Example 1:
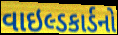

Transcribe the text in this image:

વાઇલ્ડકાર્ડનો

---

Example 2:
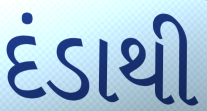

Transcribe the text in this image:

દંડાથી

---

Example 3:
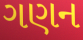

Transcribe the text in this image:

ગણન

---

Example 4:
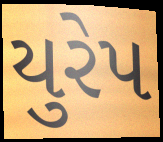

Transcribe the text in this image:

યુરેપ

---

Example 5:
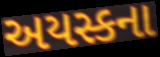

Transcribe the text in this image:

અયસ્કના